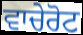
ਵਾਚੇਰੋਟ